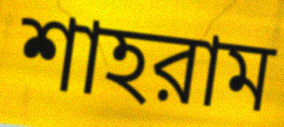
শাহরাম